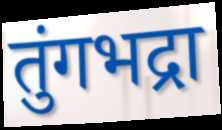
तुंगभद्रा